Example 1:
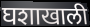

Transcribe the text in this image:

घशाखाली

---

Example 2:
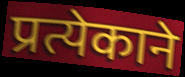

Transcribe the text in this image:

प्रत्येकाने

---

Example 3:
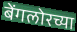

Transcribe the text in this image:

बेंगलोरच्या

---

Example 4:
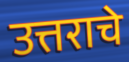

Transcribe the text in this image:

उत्तराचे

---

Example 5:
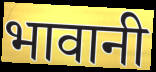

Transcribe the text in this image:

भावानी